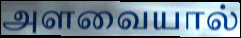
அளவையால்